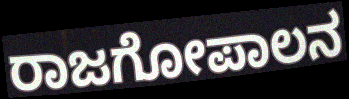
ರಾಜಗೋಪಾಲನ